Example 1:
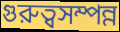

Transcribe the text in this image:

গুরুত্বসম্পন্ন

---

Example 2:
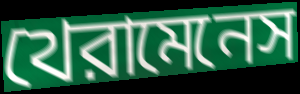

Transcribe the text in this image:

থেরামেনেস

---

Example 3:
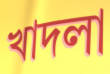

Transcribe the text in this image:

খাদলা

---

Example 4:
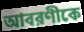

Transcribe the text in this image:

আবরণীকে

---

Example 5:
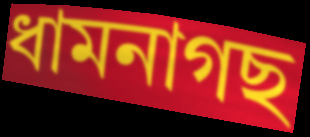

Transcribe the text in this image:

ধামনাগছ